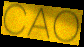
CAO